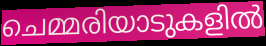
ചെമ്മരിയാടുകളിൽ